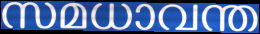
സമധാവന്ത